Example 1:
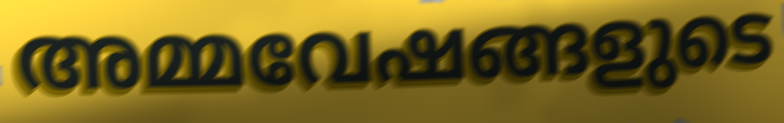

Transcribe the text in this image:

അമ്മവേഷങ്ങളുടെ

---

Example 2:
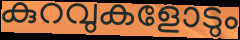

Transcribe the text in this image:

കുറവുകളോടും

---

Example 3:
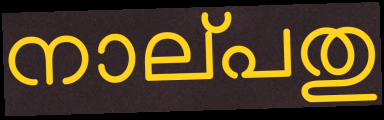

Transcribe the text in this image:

നാല്‌പതു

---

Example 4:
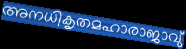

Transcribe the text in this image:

അനധികൃതമഹാരാജാവു്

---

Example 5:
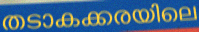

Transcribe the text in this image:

തടാകക്കരയിലെ